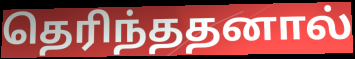
தெரிந்ததனால்